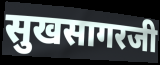
सुखसागरजी